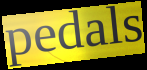
pedals